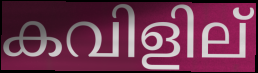
കവിളില്